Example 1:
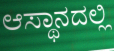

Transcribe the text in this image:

ಆಸ್ಥಾನದಲ್ಲಿ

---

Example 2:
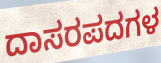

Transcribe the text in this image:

ದಾಸರಪದಗಳ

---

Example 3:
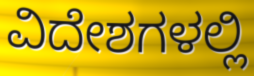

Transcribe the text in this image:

ವಿದೇಶಗಳಲ್ಲಿ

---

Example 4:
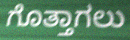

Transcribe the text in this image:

ಗೊತ್ತಾಗಲು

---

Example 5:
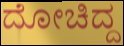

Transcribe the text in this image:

ದೋಚಿದ್ದ